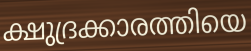
ക്ഷുദ്രക്കാരത്തിയെ